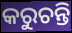
କରୁଚନ୍ତି